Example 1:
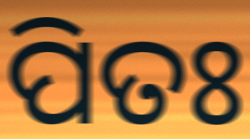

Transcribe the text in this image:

ପିତଃ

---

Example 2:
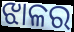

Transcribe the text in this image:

ଝାଳର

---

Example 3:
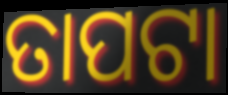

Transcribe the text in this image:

ତାପଟା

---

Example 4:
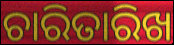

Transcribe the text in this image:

ଚାରିତାରିଖ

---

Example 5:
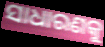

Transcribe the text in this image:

ସାଧାରଣକୁ